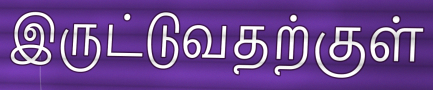
இருட்டுவதற்குள்